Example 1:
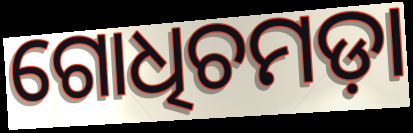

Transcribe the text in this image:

ଗୋଧିଚମଡ଼ା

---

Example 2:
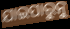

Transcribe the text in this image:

ଯାଇପାରୁନୁ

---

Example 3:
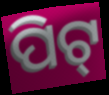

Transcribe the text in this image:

ପିଟ୍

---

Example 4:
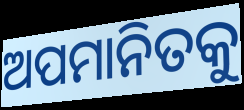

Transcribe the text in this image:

ଅପମାନିତକୁ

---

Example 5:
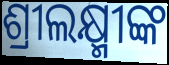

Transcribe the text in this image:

ଶ୍ରୀଲକ୍ଷ୍ମୀଙ୍କ